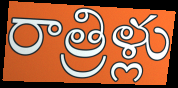
రాత్రిళ్లు